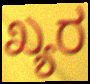
ಖ್ಯರ